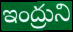
ఇంద్రుని